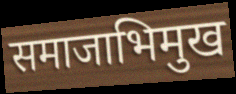
समाजाभिमुख